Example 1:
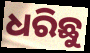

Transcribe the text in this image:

ଧରିଛୁ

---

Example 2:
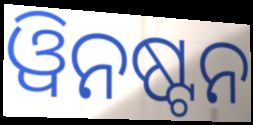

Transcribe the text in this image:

ୱିନଷ୍ଟନ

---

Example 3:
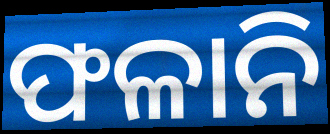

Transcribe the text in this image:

ଫଳାନି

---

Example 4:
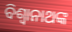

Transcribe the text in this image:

ବିଶ୍ୱାନାଥଙ୍କ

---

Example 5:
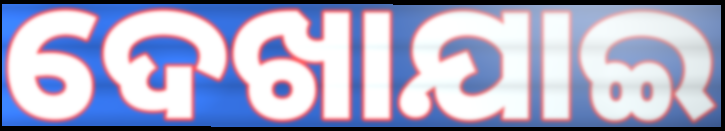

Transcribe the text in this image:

ଦେଖାଯାଇ